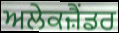
ਅਲੇਕਜ਼ੈਂਡਰ